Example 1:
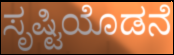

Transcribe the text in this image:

ಸೃಷ್ಟಿಯೊಡನೆ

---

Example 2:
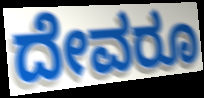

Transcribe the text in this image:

ದೇವರೂ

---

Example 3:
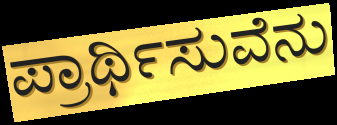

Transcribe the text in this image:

ಪ್ರಾರ್ಥಿಸುವೆನು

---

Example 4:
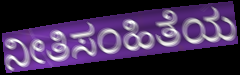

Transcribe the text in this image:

ನೀತಿಸಂಹಿತೆಯ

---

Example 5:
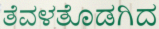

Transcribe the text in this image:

ತೆವಳತೊಡಗಿದ